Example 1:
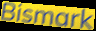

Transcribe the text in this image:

Bismark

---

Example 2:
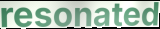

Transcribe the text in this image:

resonated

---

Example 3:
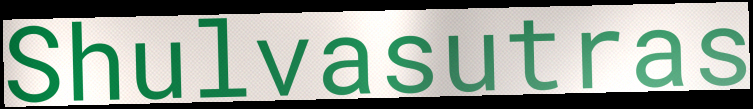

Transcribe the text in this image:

Shulvasutras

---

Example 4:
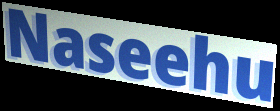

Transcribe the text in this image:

Naseehu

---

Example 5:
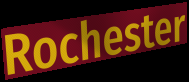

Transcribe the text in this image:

Rochester